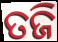
ତଜି